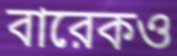
বারেকও